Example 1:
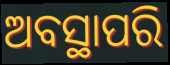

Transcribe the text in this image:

ଅବସ୍ଥାପରି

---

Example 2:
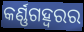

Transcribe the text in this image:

କର୍ଣ୍ଣଗହ୍ୱରର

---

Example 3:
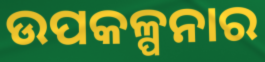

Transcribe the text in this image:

ଉପକଳ୍ପନାର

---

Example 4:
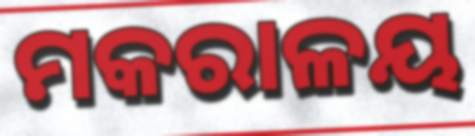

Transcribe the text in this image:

ମକରାଳୟ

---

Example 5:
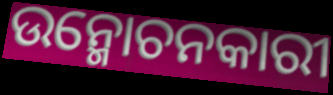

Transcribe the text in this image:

ଉନ୍ମୋଚନକାରୀ